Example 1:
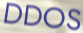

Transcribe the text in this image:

DDOS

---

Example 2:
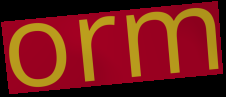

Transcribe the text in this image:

orm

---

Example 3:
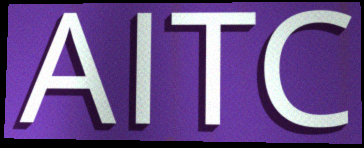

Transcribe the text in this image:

AITC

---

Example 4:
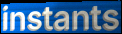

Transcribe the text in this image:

instants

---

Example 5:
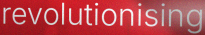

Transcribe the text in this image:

revolutionising